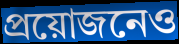
প্রয়োজনেও